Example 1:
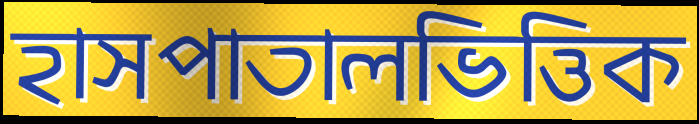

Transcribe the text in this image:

হাসপাতালভিত্তিক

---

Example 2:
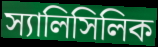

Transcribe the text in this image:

স্যালিসিলিক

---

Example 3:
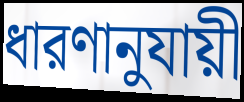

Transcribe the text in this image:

ধারণানুযায়ী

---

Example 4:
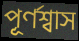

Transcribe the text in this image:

পূর্ণশ্বাস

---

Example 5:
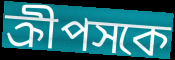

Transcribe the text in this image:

ক্রীপসকে